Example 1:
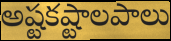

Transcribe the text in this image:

అష్టకష్టాలపాలు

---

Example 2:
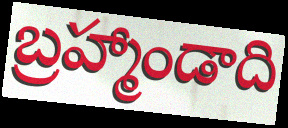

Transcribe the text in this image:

బ్రహ్మాండాది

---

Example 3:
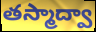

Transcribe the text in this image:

తస్మాద్వా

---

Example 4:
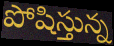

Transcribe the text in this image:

పోషిస్తున్న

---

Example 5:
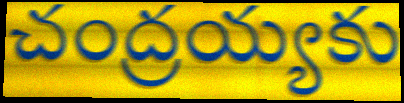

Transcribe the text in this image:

చంద్రయ్యకు